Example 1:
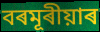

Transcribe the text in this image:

বৰমূৰীয়াৰ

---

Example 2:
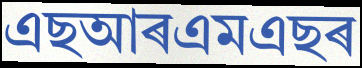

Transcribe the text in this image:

এছআৰএমএছৰ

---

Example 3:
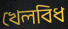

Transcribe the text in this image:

খেলবিধ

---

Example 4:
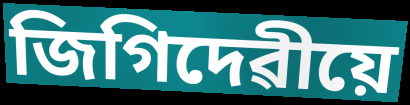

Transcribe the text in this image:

জিগিদেৱীয়ে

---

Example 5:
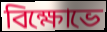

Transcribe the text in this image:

বিক্ষোভে